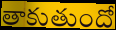
తాకుతుందో